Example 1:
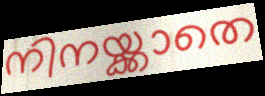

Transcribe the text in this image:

നിനയ്ക്കാതെ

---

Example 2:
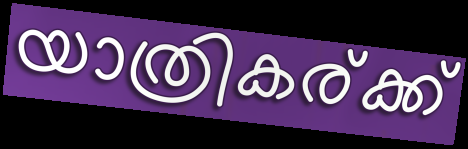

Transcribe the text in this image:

യാത്രികര്ക്ക്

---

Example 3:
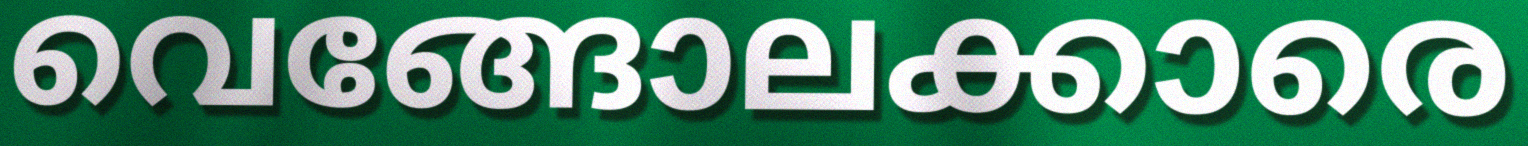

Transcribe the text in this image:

വെങ്ങോലക്കാരെ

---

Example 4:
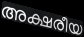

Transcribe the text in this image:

അക്ഷരീയ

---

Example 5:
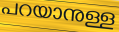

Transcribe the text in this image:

പറയാനുള്ള